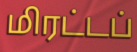
மிரட்டப்